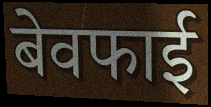
बेवफाई